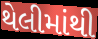
થેલીમાંથી